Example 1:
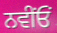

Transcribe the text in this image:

ਨਵੀਂਓਂ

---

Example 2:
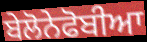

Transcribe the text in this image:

ਬੇਲੋਨੇਫੋਬੀਆ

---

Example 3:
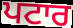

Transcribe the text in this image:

ਪਟਾਰ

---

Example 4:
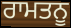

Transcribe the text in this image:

ਰਾਮਤਨੂ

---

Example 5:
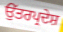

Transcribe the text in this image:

ਉੱਤਰਪ੍ਰਦੇਸ਼